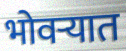
भोवऱ्यात